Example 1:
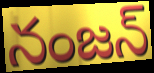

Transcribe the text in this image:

నంజన్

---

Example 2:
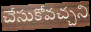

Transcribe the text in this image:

చేసుకోవచ్చని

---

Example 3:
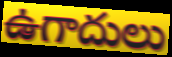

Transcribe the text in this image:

ఉగాదులు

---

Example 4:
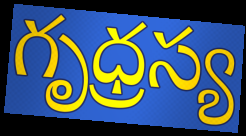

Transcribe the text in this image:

గృధ్రస్య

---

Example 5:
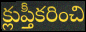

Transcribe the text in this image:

క్లుప్తీకరించి